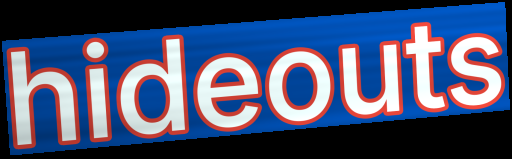
hideouts